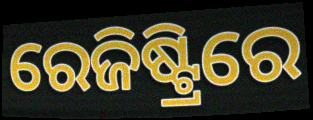
ରେଜିଷ୍ଟ୍ରିରେ